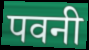
पवनी